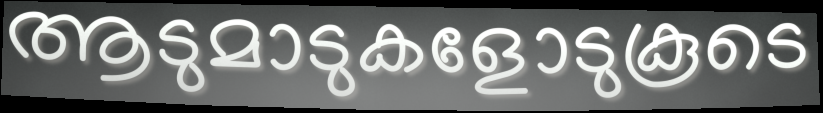
ആടുമാടുകളോടുകൂടെ